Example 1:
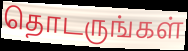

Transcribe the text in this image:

தொடருங்கள்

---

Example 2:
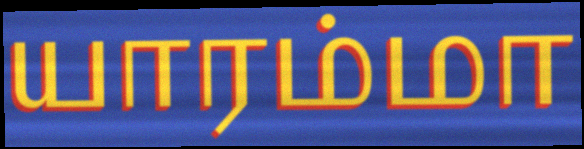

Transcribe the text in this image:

யாரம்மா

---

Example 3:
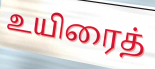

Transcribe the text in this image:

உயிரைத்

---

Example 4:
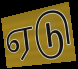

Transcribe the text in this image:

ஏடு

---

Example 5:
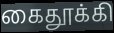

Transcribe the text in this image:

கைதூக்கி